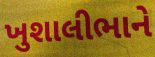
ખુશાલીભાને